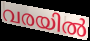
വരയിൽ